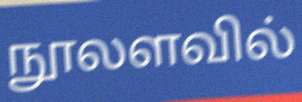
நூலளவில்